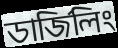
ডার্জিলিং